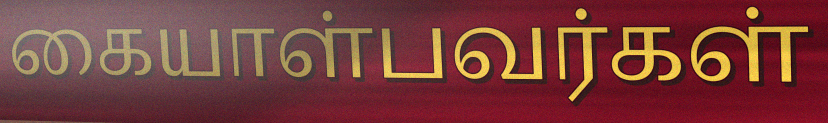
கையாள்பவர்கள்